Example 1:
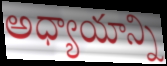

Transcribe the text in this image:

అధ్యాయాన్ని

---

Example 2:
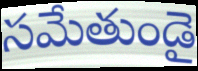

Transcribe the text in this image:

సమేతుండై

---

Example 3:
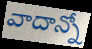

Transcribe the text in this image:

వాదాన్నో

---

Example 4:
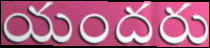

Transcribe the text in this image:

యందరు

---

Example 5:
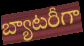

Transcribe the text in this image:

బ్యాటరీగా